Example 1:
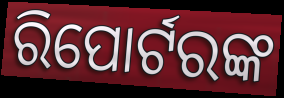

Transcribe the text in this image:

ରିପୋର୍ଟରଙ୍କ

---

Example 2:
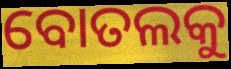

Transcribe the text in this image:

ବୋତଲକୁ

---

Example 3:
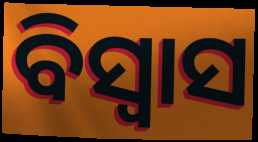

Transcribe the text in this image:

ବିସ୍ବାସ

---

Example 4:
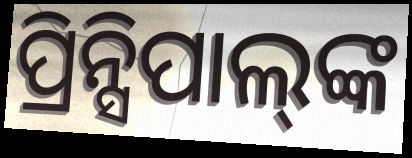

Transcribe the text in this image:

ପ୍ରିନ୍ସିପାଲ୍‍ଙ୍କ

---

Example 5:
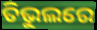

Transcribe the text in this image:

ତିଭୁଲରେ